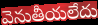
వెనుతీయలేదు